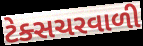
ટેક્સચરવાળી